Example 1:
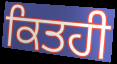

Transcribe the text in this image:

ਕਿਤਹੀ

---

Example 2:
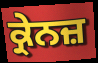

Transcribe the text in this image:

ਕ੍ਰੇਨਜ਼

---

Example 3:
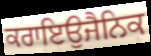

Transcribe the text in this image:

ਕਰਾਇਉਜੈਨਿਕ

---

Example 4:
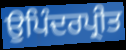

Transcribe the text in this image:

ਉਪਿੰਦਰਪ੍ਰੀਤ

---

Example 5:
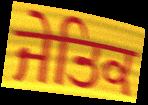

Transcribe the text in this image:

ਜੇਤਿਕ